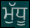
ਮੁੱਧੂ